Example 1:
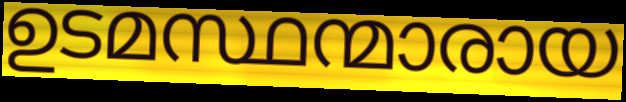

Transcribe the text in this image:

ഉടമസ്ഥന്മാരായ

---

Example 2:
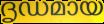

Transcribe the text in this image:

ദൃഡമായ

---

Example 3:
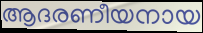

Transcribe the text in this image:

ആദരണീയനായ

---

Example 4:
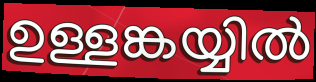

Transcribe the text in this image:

ഉള്ളങ്കയ്യിൽ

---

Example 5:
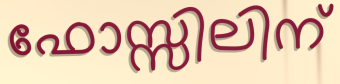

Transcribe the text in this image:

ഫോസ്സിലിന്